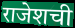
राजेशची